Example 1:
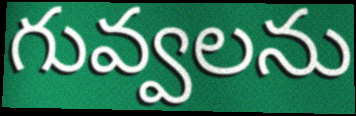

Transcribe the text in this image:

గువ్వలను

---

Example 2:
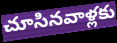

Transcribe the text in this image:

చూసినవాళ్లకు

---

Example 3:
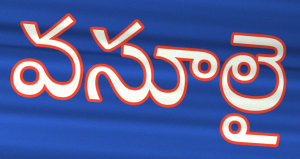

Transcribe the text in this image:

వసూలై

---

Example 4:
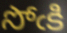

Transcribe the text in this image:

సోఁకి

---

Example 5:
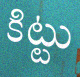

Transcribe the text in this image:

కిట్టు